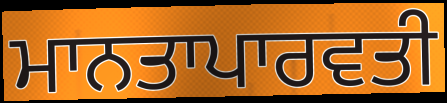
ਮਾਨਤਾਪਾਰਵਤੀ